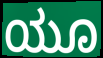
ಯೂ